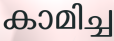
കാമിച്ച